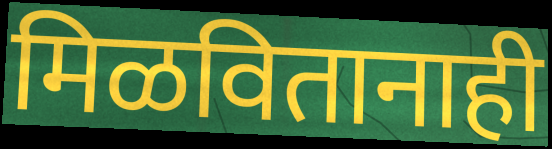
मिळवितानाही